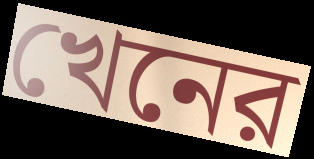
খেনের